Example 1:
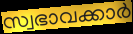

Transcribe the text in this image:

സ്വഭാവക്കാർ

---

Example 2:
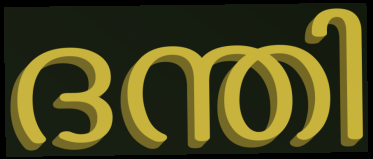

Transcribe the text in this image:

ദന്തി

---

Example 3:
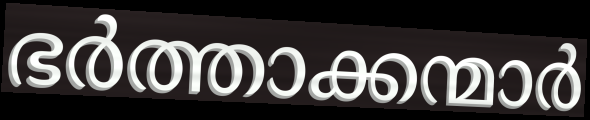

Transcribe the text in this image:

ഭർത്താക്കന്മാർ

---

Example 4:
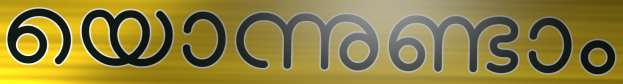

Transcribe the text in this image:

യൊന്നുണ്ടാം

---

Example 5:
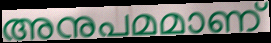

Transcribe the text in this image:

അനുപമമാണ്